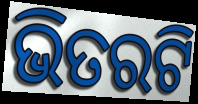
ଭିତରଟି